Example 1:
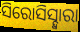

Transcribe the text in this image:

ସିରୋସିସ୍ଦ୍ୱାରା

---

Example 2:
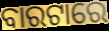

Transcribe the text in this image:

ବାରଟାରେ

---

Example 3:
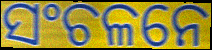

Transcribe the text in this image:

ସଂଚଳନେ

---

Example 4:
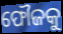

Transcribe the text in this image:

ଫୌଜକୁ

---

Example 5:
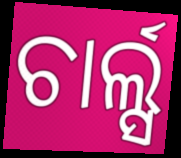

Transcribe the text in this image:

ଚାର୍ଲ୍ସ